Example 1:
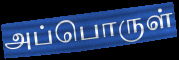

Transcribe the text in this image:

அப்பொருள்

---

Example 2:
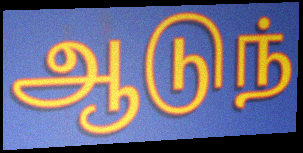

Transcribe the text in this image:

ஆடுந்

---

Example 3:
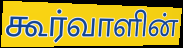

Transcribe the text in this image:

கூர்வாளின்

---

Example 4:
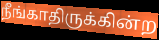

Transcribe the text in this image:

நீங்காதிருக்கின்ற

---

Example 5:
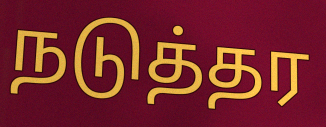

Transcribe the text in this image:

நடுத்தர